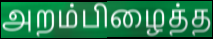
அறம்பிழைத்த